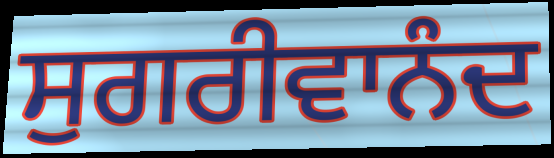
ਸੁਗਰੀਵਾਨੰਦ